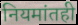
नियमांतही